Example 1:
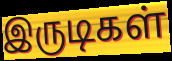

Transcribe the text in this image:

இருடிகள்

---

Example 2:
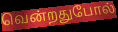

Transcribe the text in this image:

வென்றதுபோல்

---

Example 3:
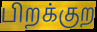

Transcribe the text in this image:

பிறக்குற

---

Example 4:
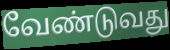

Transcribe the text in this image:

வேண்டுவது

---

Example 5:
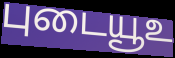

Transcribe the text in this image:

புடையூஉ